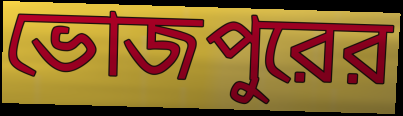
ভোজপুরের